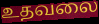
உதவலை